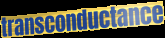
transconductance